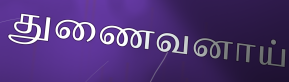
துணைவனாய்